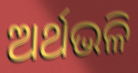
ଅର୍ଥଭଳି